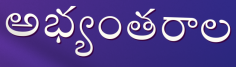
అభ్యంతరాల